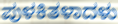
ಪುಳಕಿತಳಾದಳು